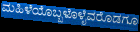
ಮಹಿಳೆಯೊಬ್ಬಳೊಳೈವರೊಡಗೂ